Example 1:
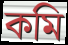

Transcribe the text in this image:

কমি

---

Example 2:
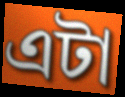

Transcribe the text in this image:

এটা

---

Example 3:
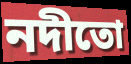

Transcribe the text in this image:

নদীতো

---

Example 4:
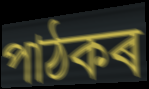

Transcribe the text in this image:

পাঠকৰ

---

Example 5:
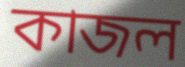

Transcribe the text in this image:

কাজল